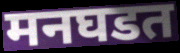
मनघडत